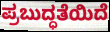
ಪ್ರಬುದ್ಧತೆಯಿದೆ